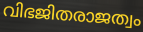
വിഭജിതരാജത്വം